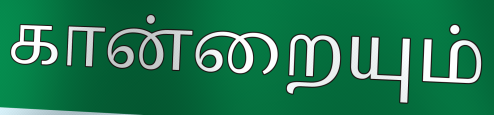
கான்றையும்